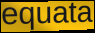
equata